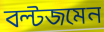
বল্টজমেন